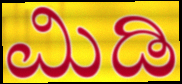
ಮಿಡಿ